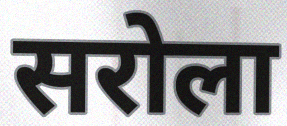
सरोला